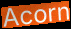
Acorn